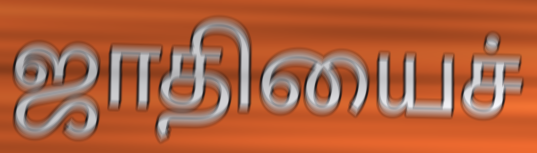
ஜாதியைச்